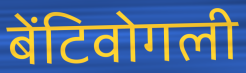
बेंटिवोगली